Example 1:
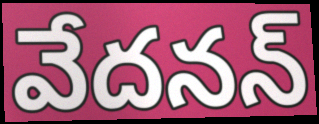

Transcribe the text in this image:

వేదనన్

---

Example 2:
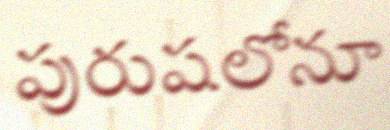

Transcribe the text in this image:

పురుషలోనూ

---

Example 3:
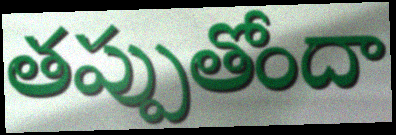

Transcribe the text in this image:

తప్పుతోందా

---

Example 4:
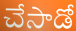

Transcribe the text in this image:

చేసాడో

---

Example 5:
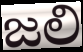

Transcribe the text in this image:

జలి